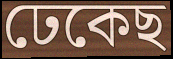
ঢেকেছ